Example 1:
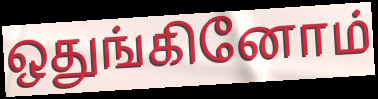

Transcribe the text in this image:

ஒதுங்கினோம்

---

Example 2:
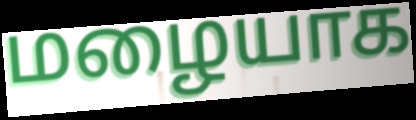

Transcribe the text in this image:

மழையாக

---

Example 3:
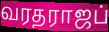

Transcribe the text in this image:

வரதராஜப்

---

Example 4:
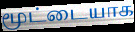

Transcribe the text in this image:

மூட்டையாக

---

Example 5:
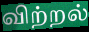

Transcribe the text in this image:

விற்றல்